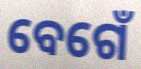
ବେଗେଁ